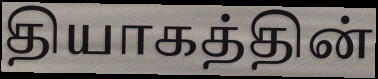
தியாகத்தின்